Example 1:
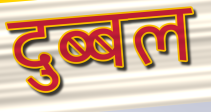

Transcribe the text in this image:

दुब्बल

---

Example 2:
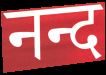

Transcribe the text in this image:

नन्द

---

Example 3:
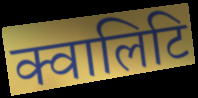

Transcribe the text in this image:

क्वालिटि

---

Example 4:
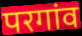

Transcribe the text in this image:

परगांव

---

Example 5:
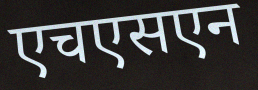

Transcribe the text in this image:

एचएसएन